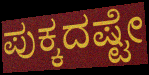
ಪುಕ್ಕದಷ್ಟೇ